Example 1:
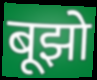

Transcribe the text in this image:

बूझो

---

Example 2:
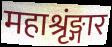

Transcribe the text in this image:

महाश्रृंङ्गार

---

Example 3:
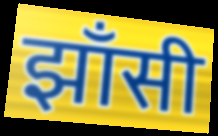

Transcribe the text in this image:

झाँसी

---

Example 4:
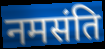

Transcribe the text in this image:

नमसंति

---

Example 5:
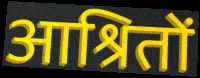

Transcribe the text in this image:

आश्रितों